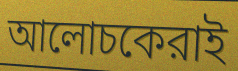
আলোচকেরাই